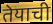
तेयाची